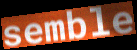
semble